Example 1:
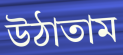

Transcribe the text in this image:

উঠাতাম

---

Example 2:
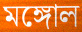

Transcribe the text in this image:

মঙ্গোল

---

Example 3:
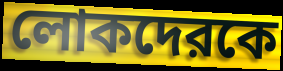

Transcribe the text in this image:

লোকদেরকে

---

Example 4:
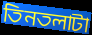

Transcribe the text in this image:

তিনতলাটা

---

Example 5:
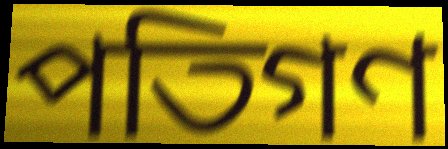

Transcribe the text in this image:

পতিগণ